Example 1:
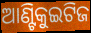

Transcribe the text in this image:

ଆଣ୍ଟିକୁଇଟିଜ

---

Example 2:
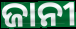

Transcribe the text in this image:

ଜାନୀ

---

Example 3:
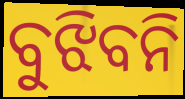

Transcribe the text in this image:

ବୁଝିବନି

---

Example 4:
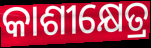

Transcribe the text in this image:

କାଶୀକ୍ଷେତ୍ର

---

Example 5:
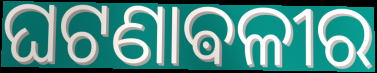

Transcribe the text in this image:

ଘଟଣାଵଳୀର